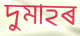
দুমাহৰ